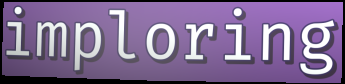
imploring